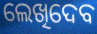
ଲେଖିଦେବ